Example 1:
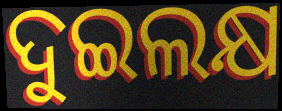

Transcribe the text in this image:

ଦୁଇଲକ୍ଷ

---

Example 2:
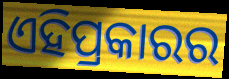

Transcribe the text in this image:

ଏହିପ୍ରକାରର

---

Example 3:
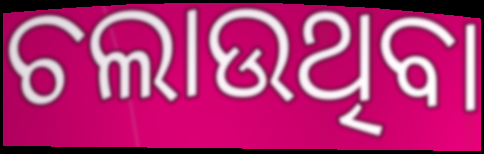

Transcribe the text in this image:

ଚଲାଉଥିବା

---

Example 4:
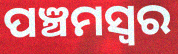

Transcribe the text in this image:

ପଞ୍ଚମସ୍ଵର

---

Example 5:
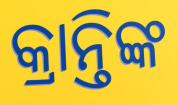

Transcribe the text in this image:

କ୍ରାନ୍ତିଙ୍କ